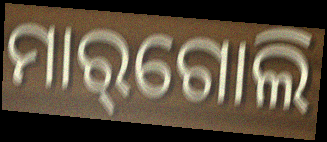
ମାର୍‌ଗୋଲି